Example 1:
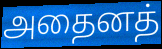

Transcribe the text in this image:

அதைனத்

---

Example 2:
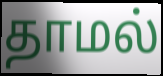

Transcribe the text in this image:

தாமல்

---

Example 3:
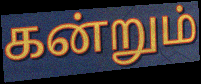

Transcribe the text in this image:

கன்றும்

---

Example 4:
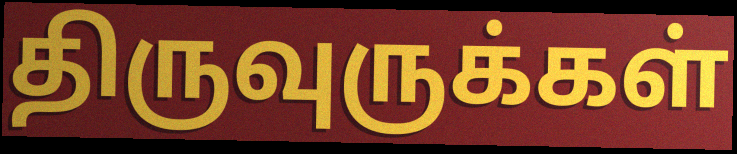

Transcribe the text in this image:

திருவுருக்கள்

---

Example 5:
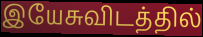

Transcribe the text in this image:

இயேசுவிடத்தில்